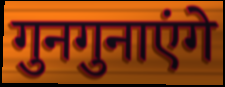
गुनगुनाएंगे